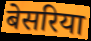
बेसरिया